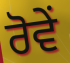
ਰੋਵੇਂ